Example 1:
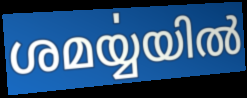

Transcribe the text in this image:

ശമൎയ്യയിൽ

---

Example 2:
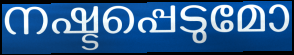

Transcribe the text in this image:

നഷ്ടപ്പെടുമോ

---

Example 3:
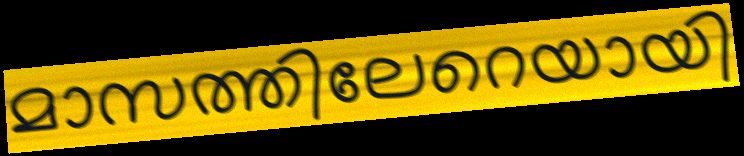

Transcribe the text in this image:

മാസത്തിലേറെയായി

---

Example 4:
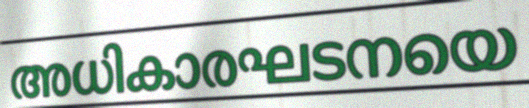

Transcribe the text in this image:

അധികാരഘടനയെ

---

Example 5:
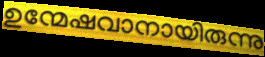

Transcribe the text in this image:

ഉന്മേഷവാനായിരുന്നു